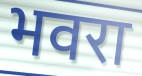
भवरा